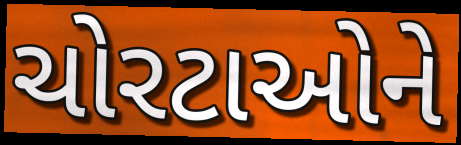
ચોરટાઓને